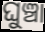
ଘୁଞ୍ଚା